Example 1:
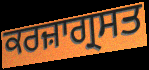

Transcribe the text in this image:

ਕਰਜ਼ਾਗ੍ਰਸਤ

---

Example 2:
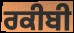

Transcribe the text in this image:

ਰਕੀਬੀ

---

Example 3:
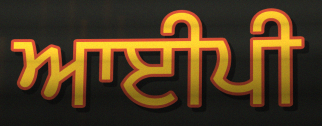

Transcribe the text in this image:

ਆਈਪੀ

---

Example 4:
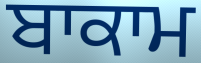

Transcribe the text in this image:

ਬਾਕਾਮ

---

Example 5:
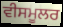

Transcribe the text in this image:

ਵੀਸਮੂਲਰ